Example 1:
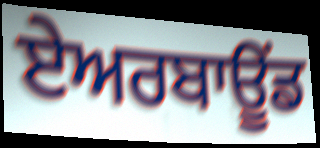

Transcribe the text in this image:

ਏਅਰਬਾਊਂਡ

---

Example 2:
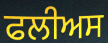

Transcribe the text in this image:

ਫਲੀਅਸ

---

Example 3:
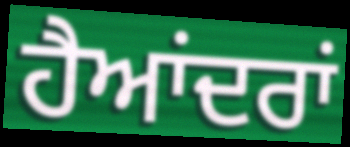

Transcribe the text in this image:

ਹੈਆਂਦਰਾਂ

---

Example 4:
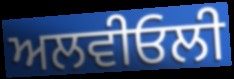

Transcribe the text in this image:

ਅਲਵੀਓਲੀ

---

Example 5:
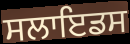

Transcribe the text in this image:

ਸਲਾਇਡਸ